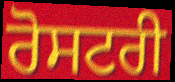
ਰੋਸਟਰੀ